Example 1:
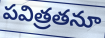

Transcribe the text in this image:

పవిత్రతనూ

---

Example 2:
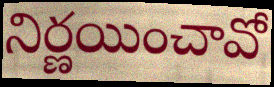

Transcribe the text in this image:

నిర్ణయించావో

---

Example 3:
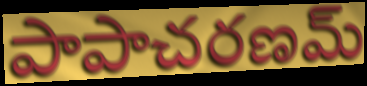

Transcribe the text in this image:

పాపాచరణమ్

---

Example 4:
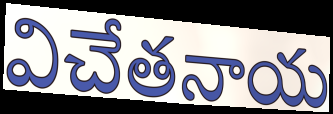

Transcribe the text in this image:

విచేతనాయ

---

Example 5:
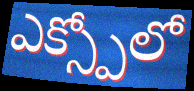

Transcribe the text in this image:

ఎక్స్పోలో